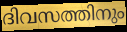
ദിവസത്തിനും